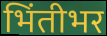
भिंतीभर